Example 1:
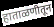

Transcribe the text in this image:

हाताळणीतून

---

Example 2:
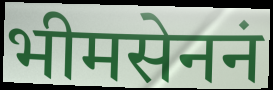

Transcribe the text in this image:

भीमसेननं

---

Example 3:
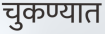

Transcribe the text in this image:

चुकण्यात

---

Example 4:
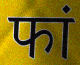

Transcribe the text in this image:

फां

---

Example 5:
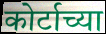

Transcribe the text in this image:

कोर्टाच्या